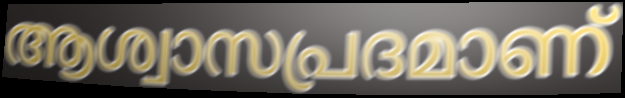
ആശ്വാസപ്രദമാണ്